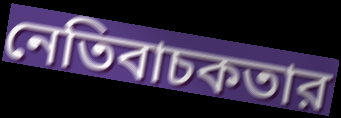
নেতিবাচকতার